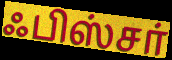
ஃபிஸ்சர்